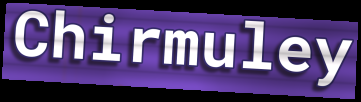
Chirmuley